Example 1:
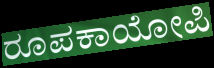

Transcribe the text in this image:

ರೂಪಕಾಯೋಪಿ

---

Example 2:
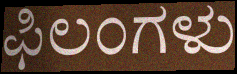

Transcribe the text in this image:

ಫಿಲಂಗಳು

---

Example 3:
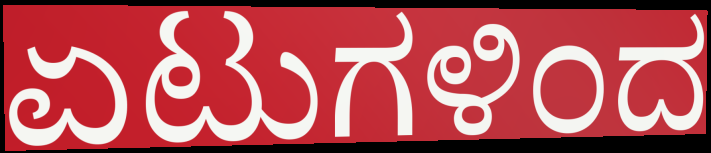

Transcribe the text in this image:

ಏಟುಗಳಿಂದ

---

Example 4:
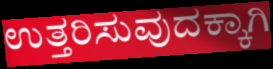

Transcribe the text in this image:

ಉತ್ತರಿಸುವುದಕ್ಕಾಗಿ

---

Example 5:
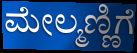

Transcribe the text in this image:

ಮೇಲ್ಮಣ್ಣಿಗೆ